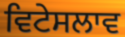
ਵਿਟੇਸਲਾਵ